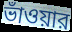
ভাঁওয়ার